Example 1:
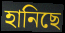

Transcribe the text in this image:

হানিছে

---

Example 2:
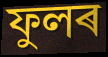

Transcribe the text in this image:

ফুলৰ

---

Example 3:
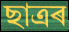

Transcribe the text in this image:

ছাত্ৰৰ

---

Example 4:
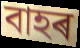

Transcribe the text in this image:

বাহৰ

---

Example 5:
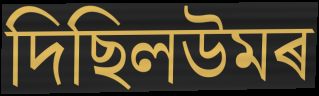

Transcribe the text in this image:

দিছিলউমৰ